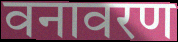
वनावरण